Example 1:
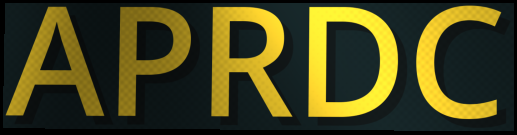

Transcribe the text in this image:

APRDC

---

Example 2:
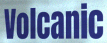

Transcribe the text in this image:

Volcanic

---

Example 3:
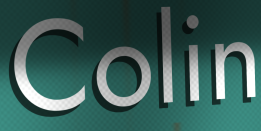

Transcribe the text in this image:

Colin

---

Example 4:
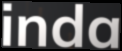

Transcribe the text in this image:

inda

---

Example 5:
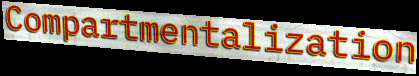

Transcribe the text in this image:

Compartmentalization